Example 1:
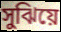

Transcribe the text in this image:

সুঝিয়ে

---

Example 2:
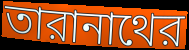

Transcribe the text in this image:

তারানাথের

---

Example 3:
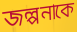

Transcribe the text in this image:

জল্পনাকে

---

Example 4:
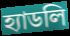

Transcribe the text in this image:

হ্যাডলি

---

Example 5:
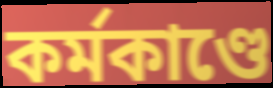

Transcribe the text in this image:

কর্মকাণ্ডে